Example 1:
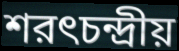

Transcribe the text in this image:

শরৎচন্দ্রীয়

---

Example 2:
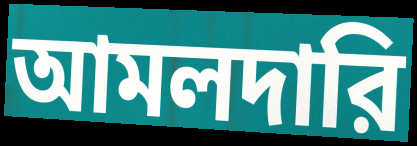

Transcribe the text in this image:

আমলদারি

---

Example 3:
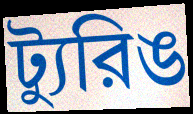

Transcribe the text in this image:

ট্যুরিঙ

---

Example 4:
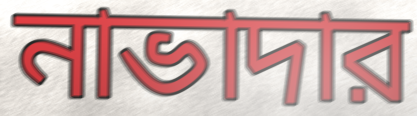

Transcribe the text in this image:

নাভাদার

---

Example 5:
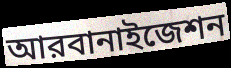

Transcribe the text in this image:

আরবানাইজেশন